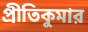
প্রীতিকুমার